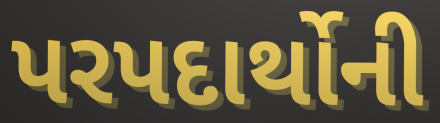
પરપદાર્થોની